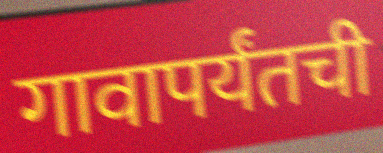
गावापर्यंतची